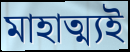
মাহাত্ম্যই